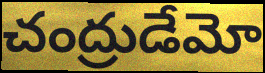
చంద్రుడేమో